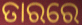
ତାରରେ